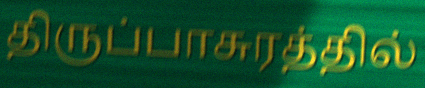
திருப்பாசுரத்தில்